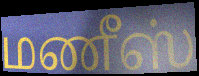
மணீஸ்